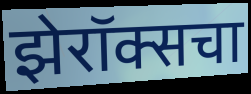
झेरॉक्सचा